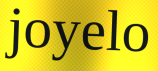
joyelo